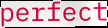
perfect